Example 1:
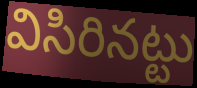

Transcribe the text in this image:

విసిరినట్టు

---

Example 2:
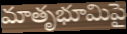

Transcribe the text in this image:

మాతృభూమిపై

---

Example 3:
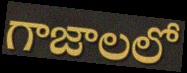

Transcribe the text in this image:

గాజాలలో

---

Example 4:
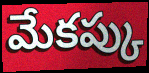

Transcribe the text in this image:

మేకప్కు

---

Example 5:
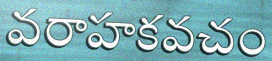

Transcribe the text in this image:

వరాహకవచం